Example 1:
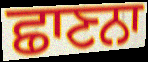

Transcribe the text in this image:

ਛਾਣਨਾ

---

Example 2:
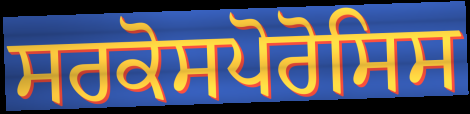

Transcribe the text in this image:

ਸਰਕੋਸਪੋਰੋਸਿਸ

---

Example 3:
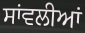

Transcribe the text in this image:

ਸਾਂਵਲੀਆਂ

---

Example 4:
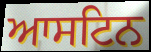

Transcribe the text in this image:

ਆਸਟਿਨ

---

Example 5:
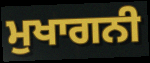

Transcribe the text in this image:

ਮੁਖਾਗਨੀ